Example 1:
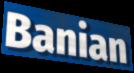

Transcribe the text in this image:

Banian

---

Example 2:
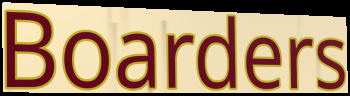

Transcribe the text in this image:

Boarders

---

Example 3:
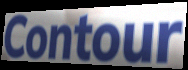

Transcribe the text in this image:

Contour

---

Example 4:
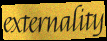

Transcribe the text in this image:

externality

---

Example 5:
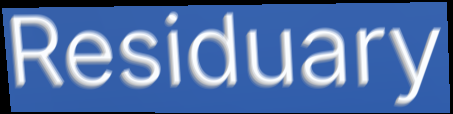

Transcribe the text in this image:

Residuary